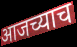
आजच्याच